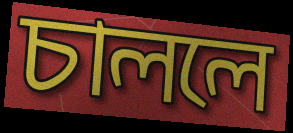
চাললে